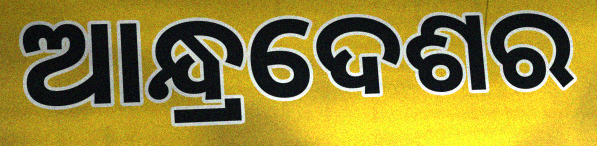
ଆନ୍ଧ୍ରଦେଶର